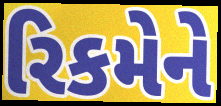
રિકમેને